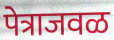
पेत्राजवळ